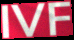
IVF